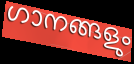
ഗാനങ്ങളും